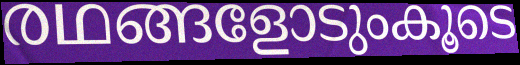
രഥങ്ങളോടുംകൂടെ